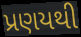
પ્રણયથી